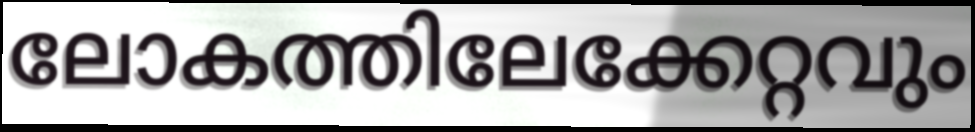
ലോകത്തിലേക്കേറ്റവും